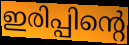
ഇരിപ്പിന്റെ